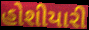
હોશીયારી